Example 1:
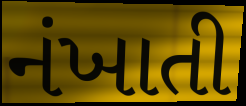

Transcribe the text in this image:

નંખાતી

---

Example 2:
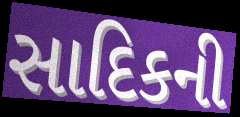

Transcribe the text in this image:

સાદિકની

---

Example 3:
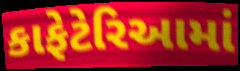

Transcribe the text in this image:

કાફેટેરિઆમાં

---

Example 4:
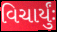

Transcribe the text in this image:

વિચાર્યુંઃ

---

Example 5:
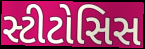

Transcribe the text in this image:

સ્ટીટોસિસ